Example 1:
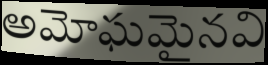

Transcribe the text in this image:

అమోఘమైనవి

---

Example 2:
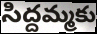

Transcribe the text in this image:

సిద్దమ్మకు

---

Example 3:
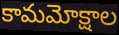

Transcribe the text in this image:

కామమోక్షాల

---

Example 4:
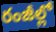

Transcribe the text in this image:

రంజీల్లో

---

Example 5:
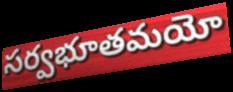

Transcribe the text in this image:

సర్వభూతమయో